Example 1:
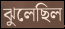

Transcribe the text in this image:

ঝুলেছিল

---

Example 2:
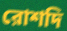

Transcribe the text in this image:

রোশদি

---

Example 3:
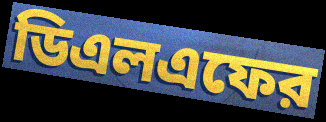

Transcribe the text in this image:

ডিএলএফের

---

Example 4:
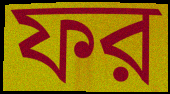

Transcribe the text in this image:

ফর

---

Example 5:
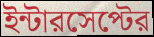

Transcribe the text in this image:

ইন্টারসেপ্টের